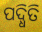
ପଦ୍ଧିତି